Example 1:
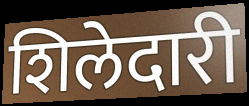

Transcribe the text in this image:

शिलेदारी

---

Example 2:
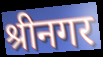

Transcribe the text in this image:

श्रीनगर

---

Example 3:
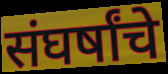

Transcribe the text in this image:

संघर्षांचे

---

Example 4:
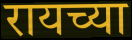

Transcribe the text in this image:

रायच्या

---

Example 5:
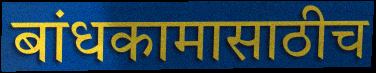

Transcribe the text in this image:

बांधकामासाठीच